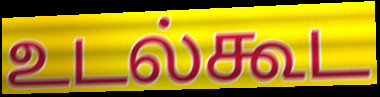
உடல்கூட